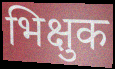
भिक्षुक